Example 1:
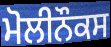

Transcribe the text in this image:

ਮੋਲੀਨੌਕਸ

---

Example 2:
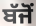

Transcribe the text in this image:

ਬੱਜੋਂ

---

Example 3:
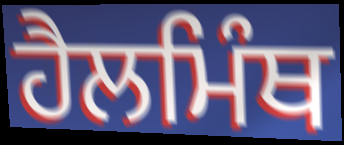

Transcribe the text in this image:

ਹੈਲਮਿੰਥ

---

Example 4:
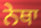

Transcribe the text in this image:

ਨੇਥਾ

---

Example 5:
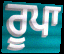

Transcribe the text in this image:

ਰੂਪਾ